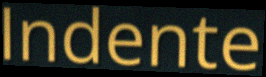
Indente